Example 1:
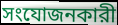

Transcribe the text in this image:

সংযোজনকারী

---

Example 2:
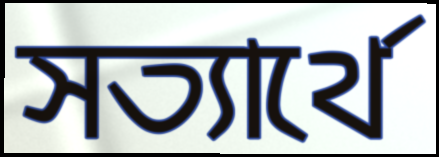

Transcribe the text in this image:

সত্যার্থে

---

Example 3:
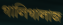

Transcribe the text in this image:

গালিগালাজ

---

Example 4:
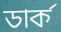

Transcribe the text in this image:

ডার্ক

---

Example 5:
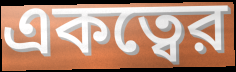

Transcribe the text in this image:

একত্বের